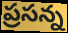
ప్రసన్న